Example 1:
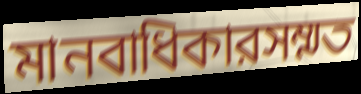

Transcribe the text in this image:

মানবাধিকারসম্মত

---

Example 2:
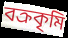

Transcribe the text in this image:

বক্রকৃমি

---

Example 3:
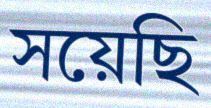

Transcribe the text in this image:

সয়েছি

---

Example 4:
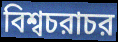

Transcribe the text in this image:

বিশ্বচরাচর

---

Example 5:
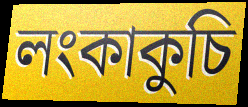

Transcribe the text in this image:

লংকাকুচি